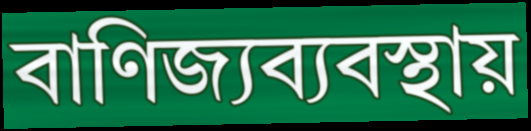
বাণিজ্যব্যবস্থায়